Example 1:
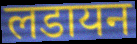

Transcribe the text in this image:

लडायन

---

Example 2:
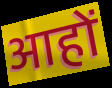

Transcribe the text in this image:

आहों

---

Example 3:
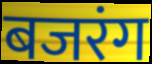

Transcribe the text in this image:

बजरंग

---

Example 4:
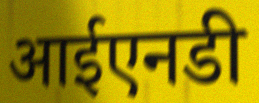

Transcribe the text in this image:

आईएनडी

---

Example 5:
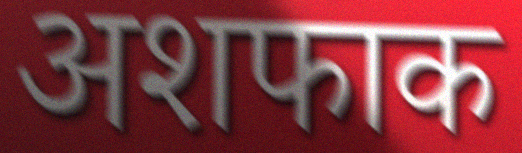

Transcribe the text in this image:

अशफाक